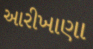
આરીખાણા